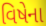
વિષેના